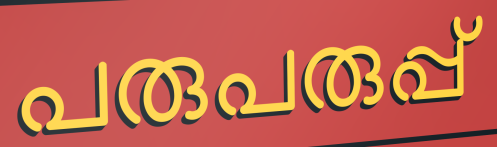
പരുപരുപ്പ്